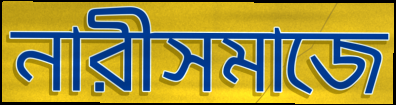
নারীসমাজে